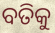
ବତିକୁ